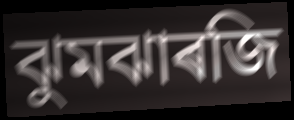
ঝুমঝাৰজি